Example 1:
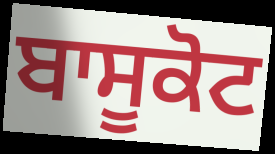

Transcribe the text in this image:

ਬਾਸੂਕੋਟ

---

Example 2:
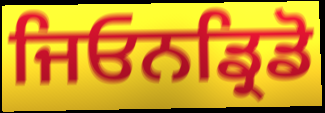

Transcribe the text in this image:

ਜਿਓਨਡ੍ਰਿਡੋ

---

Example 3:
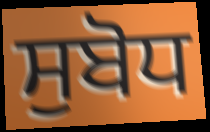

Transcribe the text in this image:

ਸੁਬੋਧ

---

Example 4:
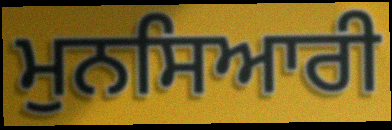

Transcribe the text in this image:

ਮੁਨਸਿਆਰੀ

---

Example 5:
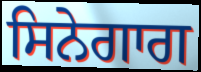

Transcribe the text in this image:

ਸਿਨੇਗਾਗ